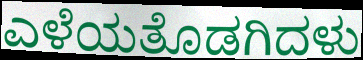
ಎಳೆಯತೊಡಗಿದಳು